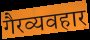
गैरव्यवहार